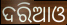
ଦରିଆଓ